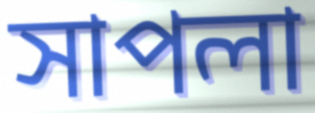
সাপলা